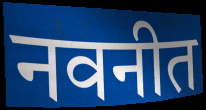
नवनीत